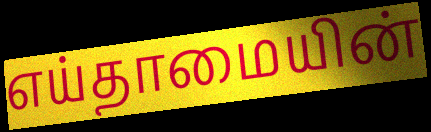
எய்தாமையின்